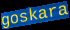
goskara